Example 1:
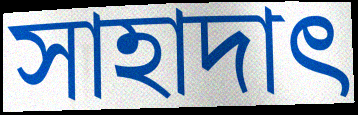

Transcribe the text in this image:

সাহাদাৎ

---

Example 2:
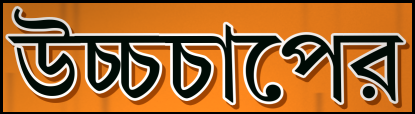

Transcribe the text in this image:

উচ্চচাপের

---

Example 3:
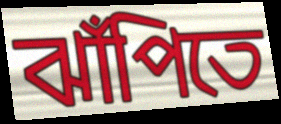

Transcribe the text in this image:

ঝাঁপিতে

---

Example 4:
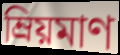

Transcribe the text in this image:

ম্রিয়মাণ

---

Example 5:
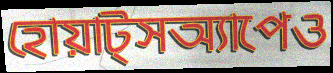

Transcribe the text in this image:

হোয়াট্‌সঅ্যাপেও